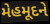
મેહમૂદને